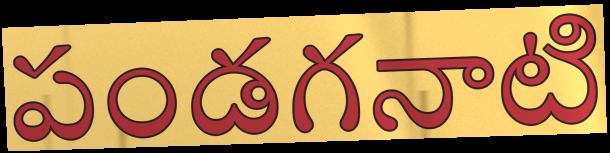
పండగనాటి